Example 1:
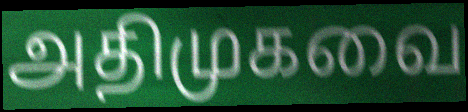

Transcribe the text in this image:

அதிமுகவை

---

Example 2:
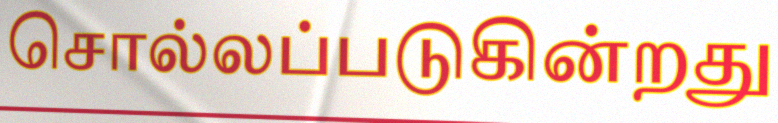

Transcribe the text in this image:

சொல்லப்படுகின்றது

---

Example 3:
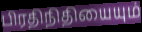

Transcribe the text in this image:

பிரதிநிதியையும்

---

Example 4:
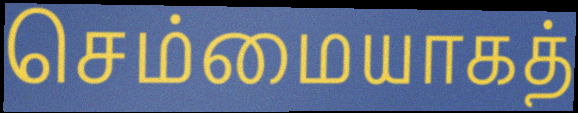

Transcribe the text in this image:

செம்மையாகத்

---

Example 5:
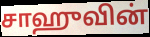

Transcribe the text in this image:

சாஹுவின்